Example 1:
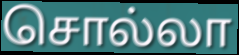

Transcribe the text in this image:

சொல்லா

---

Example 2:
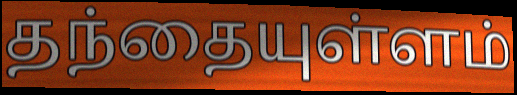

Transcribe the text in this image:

தந்தையுள்ளம்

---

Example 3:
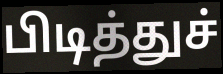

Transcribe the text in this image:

பிடித்துச்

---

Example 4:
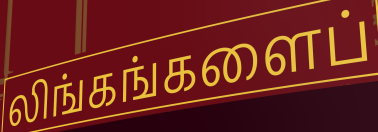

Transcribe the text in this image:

லிங்கங்களைப்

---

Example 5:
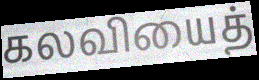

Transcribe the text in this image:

கலவியைத்